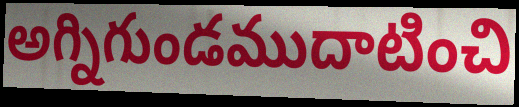
అగ్నిగుండముదాటించి